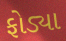
ફોડ્યા